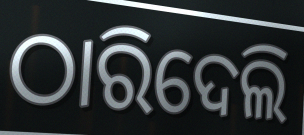
ଠାରିଦେଲି